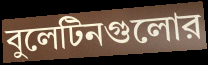
বুলেটিনগুলোর